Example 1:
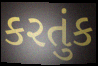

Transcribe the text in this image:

કરતુંક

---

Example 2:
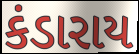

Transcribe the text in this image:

કંડારાય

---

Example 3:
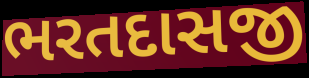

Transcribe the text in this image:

ભરતદાસજી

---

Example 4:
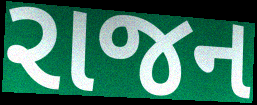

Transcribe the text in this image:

રાજન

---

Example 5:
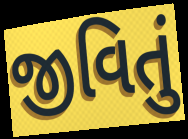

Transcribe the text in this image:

જીવિતું